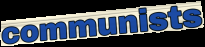
communists